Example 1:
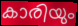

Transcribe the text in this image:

കാരിയും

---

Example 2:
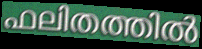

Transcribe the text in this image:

ഫലിതത്തിൽ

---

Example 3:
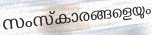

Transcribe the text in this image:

സംസ്‌കാരങ്ങളെയും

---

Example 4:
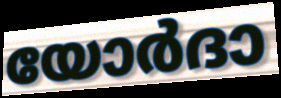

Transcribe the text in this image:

യോർദാ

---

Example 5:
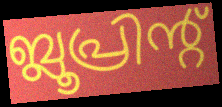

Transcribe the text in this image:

ബ്ലൂപ്രിന്റ്